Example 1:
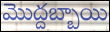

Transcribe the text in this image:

మొద్దబ్బాయి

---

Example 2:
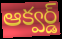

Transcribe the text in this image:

ఆక్వర్డ్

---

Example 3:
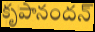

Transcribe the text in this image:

కృపానందన్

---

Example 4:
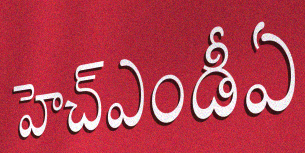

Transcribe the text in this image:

హెచ్ఎండీఏ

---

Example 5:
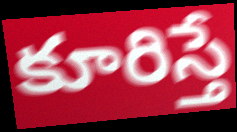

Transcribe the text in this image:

కూరిస్తే